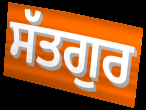
ਸੱਤਗੁਰ